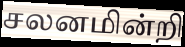
சலனமின்றி